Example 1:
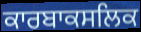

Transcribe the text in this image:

ਕਾਰਬਾਕਸਲਿਕ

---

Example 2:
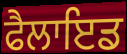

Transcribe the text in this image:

ਫੈਲਾਇਡ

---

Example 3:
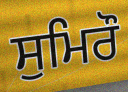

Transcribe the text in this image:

ਸੁਮਿਰੌ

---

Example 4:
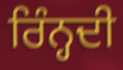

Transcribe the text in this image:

ਰਿੰਨ੍ਹਦੀ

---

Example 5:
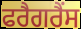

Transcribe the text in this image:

ਫਰੈਗਰੈਂਸ